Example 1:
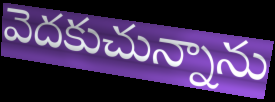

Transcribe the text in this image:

వెదకుచున్నాను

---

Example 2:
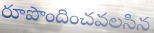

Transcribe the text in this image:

రూపొందించవలసిన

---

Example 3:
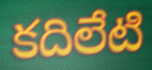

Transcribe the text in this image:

కదిలేటి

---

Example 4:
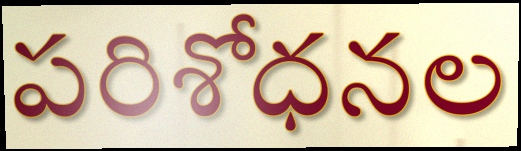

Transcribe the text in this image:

పరిశోధనల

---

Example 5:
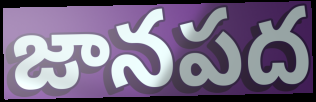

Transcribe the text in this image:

జానపద